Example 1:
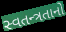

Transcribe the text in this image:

સ્વતન્ત્રતાનો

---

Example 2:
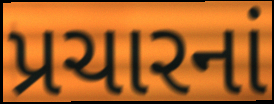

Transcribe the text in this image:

પ્રચારનાં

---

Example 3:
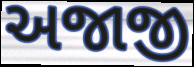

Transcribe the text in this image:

અજાજી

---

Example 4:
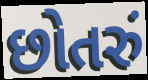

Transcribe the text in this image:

છોતરું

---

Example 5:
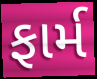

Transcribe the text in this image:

ફાર્મ